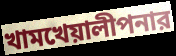
খামখেয়ালীপনার